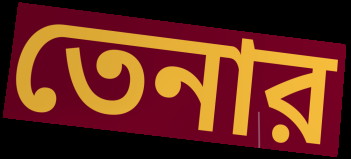
তেনার